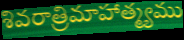
శివరాత్రిమాహాత్మ్యము